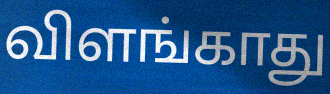
விளங்காது